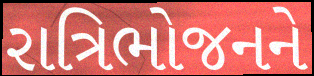
રાત્રિભોજનને